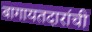
बागायतदारांची